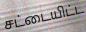
சட்டையிட்ட